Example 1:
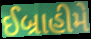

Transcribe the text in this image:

ઈબ્રાહીમે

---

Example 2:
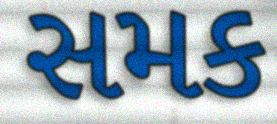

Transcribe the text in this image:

સમક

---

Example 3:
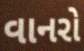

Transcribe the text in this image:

વાનરો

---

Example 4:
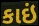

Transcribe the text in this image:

કાઇં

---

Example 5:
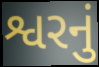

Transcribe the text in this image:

શ્વરનું